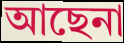
আছেনা